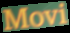
Movi